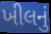
ખીલનું